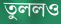
তুললও